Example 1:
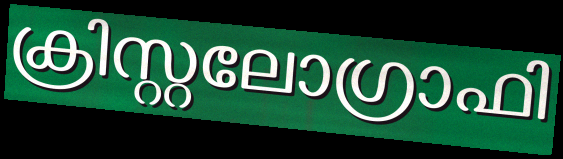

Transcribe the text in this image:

ക്രിസ്റ്റലോഗ്രാഫി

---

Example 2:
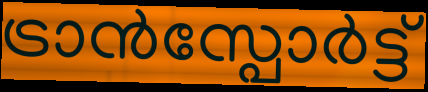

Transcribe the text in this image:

ട്രാൻസ്പോർട്ട്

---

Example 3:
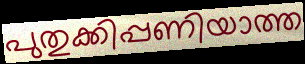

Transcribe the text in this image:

പുതുക്കിപ്പണിയാത്ത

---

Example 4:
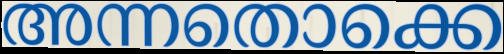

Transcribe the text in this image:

അന്നതൊക്കെ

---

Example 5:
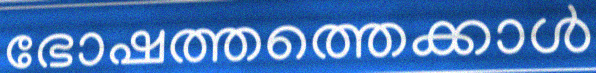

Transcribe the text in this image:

ഭോഷത്തത്തെക്കാൾ